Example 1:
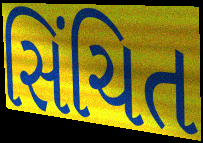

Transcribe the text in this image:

સિંચિત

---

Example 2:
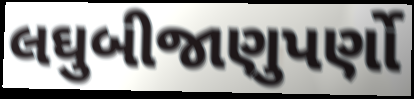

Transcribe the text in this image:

લઘુબીજાણુપર્ણો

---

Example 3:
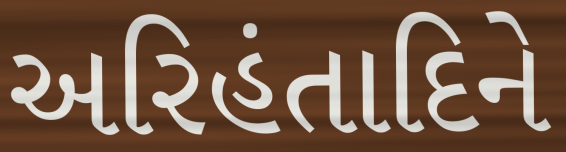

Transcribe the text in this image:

અરિહંતાદિને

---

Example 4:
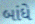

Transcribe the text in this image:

બાંધે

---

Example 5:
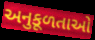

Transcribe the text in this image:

અનુકૂળતાઓ